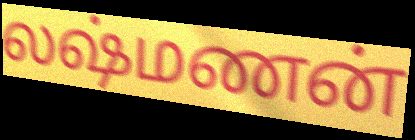
லஷ்மணன்